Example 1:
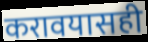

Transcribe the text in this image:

करावयासही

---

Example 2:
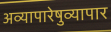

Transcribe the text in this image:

अव्यापारेषुव्यापार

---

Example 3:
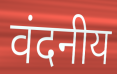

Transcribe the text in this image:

वंदनीय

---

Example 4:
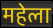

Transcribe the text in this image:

महेला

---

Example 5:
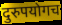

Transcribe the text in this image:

दुरुपयोगच